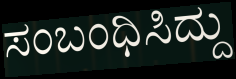
ಸಂಬಂಧಿಸಿದ್ದು